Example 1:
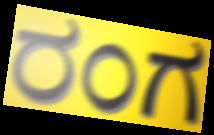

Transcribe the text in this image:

ರಂಗ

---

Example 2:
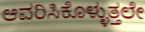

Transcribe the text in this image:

ಆವರಿಸಿಕೊಳ್ಳುತ್ತಲೇ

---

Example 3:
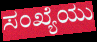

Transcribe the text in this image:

ಸಂಖ್ಯೆಯು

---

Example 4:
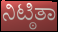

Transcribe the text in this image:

ನಿಟ್ಠಿತಾ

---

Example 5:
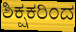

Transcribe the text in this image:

ಶಿಕ್ಷಕರಿಂದ